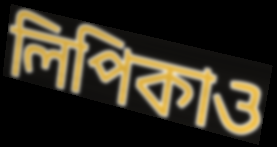
লিপিকাও